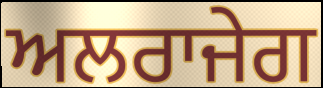
ਅਲਰਾਜੇਗ